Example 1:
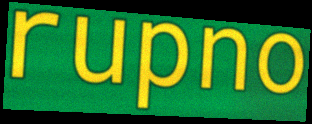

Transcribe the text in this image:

rupno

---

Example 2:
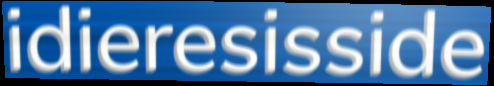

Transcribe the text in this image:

idieresisside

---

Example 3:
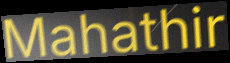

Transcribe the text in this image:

Mahathir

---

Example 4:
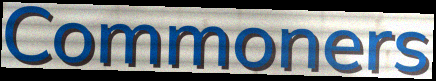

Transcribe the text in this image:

Commoners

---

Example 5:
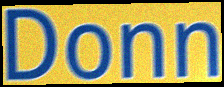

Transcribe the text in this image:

Donn